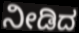
ನೀಡಿದ